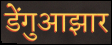
डेंगुआझार